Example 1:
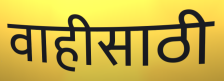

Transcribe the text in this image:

वाहीसाठी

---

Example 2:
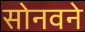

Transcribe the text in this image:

सोनवने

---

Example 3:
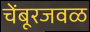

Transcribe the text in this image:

चेंबूरजवळ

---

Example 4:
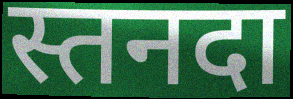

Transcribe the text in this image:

स्तनदा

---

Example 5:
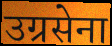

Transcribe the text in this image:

उग्रसेना